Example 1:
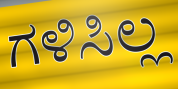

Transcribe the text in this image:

ಗಳಿಸಿಲ್ಲ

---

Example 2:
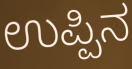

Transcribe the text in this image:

ಉಪ್ಪಿನ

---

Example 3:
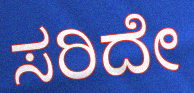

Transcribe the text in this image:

ಸರಿದೇ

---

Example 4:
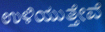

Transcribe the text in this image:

ಉಳಿಯುತ್ತೇವೆ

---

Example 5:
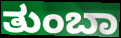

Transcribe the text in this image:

ತುಂಬಾ